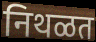
निथळत